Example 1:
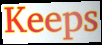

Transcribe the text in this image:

Keeps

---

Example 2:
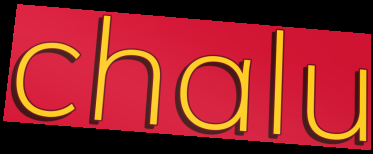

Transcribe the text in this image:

chalu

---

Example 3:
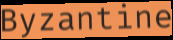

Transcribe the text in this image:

Byzantine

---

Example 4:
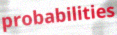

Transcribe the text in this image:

probabilities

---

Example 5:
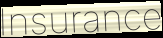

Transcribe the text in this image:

Insurance